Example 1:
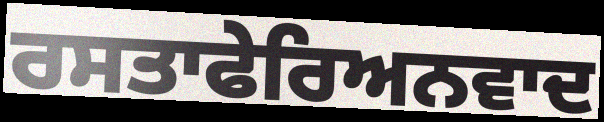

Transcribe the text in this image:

ਰਸਤਾਫੇਰਿਅਨਵਾਦ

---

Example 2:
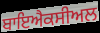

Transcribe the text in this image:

ਬਾਇਐਕਸੀਅਲ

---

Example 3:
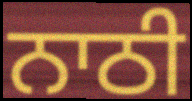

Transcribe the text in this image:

ਨਾਠੀ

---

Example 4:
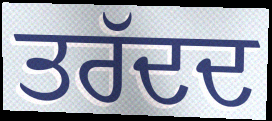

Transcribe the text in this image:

ਤਰੱਦਦ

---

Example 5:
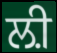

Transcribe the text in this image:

ਲ਼ੀ